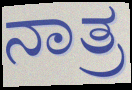
ನಾತ್ರ